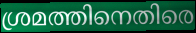
ശ്രമത്തിനെതിരെ